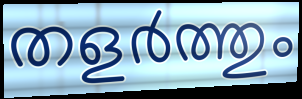
തളർത്തും